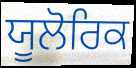
ਯੂਲੋਰਿਕ